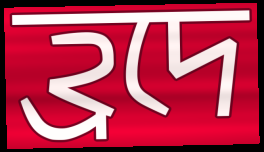
হ্রদে